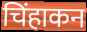
चिंहाकन